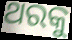
ଥରକୁ